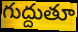
గుద్దుతూ